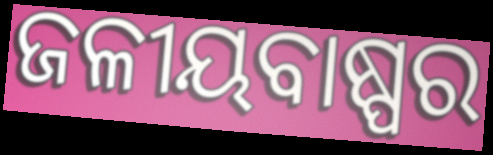
ଜଳୀୟବାଷ୍ପର